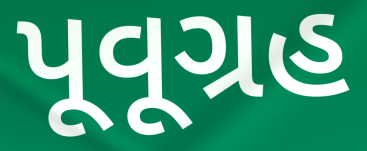
પૂવૂગ્રહ